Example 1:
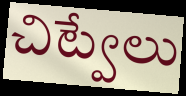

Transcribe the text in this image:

చిట్వేలు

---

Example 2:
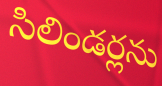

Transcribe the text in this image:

సిలిండర్లను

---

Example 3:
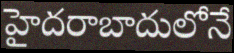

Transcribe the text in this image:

హైదరాబాదులోనే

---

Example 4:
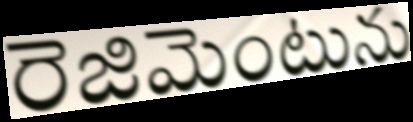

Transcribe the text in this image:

రెజిమెంటును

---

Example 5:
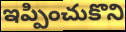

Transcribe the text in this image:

ఇప్పించుకొని